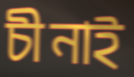
চীনাই